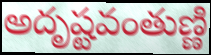
అదృష్టవంతుణ్ణి